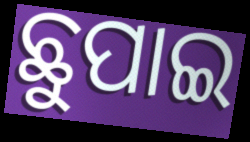
ଛୁପାଇ